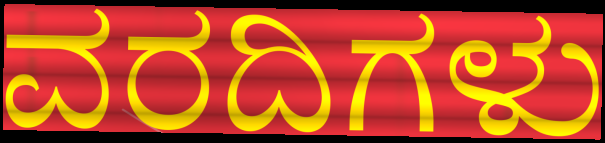
ವರದಿಗಳು